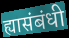
ह्यासंबंधी